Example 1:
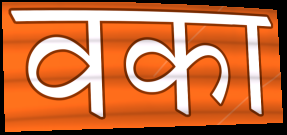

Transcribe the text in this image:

वका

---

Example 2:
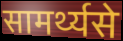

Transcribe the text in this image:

सामर्थ्यसे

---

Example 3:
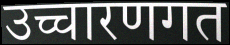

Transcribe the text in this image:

उच्चारणगत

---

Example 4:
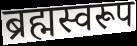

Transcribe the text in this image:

ब्रह्मस्वरूप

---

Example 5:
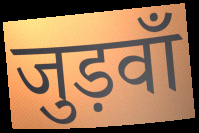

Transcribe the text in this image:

जुड़वाँ